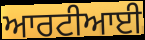
ਆਰਟੀਆਈ